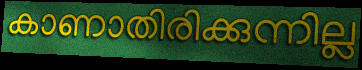
കാണാതിരിക്കുന്നില്ല